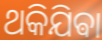
ଥକିଯିଵା